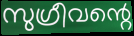
സുഗ്രീവന്റെ